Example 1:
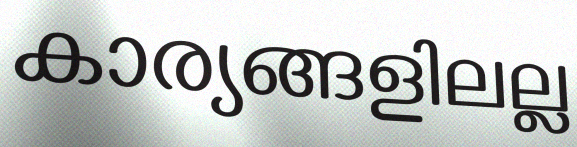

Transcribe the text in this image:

കാര്യങ്ങളിലല്ല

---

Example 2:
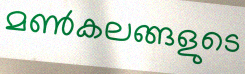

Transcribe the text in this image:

മൺകലങ്ങളുടെ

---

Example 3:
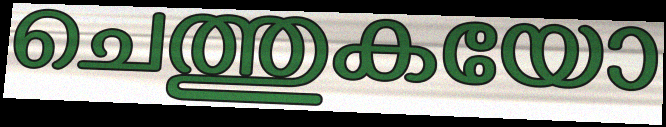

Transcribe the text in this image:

ചെത്തുകയോ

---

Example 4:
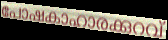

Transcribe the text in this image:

പോഷകാഹാരക്കുറവ്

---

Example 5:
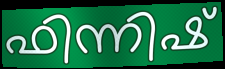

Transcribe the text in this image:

ഫിന്നിഷ്